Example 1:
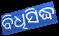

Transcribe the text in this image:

ବିଧିସିଦ୍ଧ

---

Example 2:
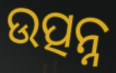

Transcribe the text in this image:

ଉତ୍ପନ୍ନ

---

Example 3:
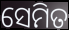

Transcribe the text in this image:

ସେମିତ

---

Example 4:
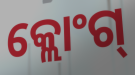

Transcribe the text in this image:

କ୍ଲୋଂଗ୍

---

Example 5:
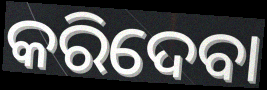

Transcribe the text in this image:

କରିଦେବା